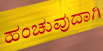
ಹಂಚುವುದಾಗಿ